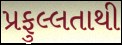
પ્રફુલ્લતાથી